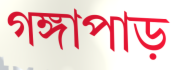
গঙ্গাপাড়